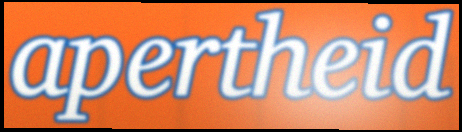
apertheid